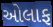
ઓલાફ